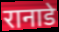
रानाडे